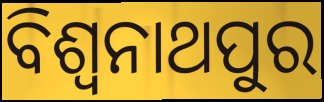
ବିଶ୍ଵନାଥପୁର